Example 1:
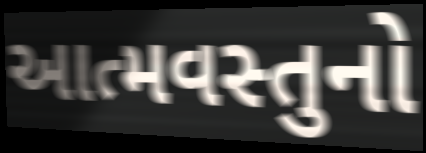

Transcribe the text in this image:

આત્મવસ્તુનો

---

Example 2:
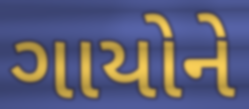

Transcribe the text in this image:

ગાયોને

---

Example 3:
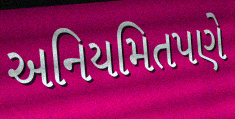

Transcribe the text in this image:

અનિયમિતપણે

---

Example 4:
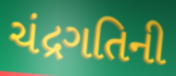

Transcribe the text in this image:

ચંદ્રગતિની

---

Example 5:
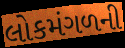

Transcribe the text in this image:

લોકમંગળની